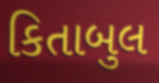
કિતાબુલ